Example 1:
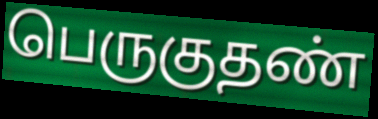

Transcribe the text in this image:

பெருகுதண்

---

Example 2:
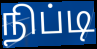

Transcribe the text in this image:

நிப்டி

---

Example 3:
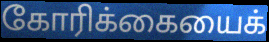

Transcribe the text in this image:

கோரிக்கையைக்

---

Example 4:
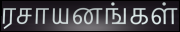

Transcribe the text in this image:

ரசாயனங்கள்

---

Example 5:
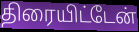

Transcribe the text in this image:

திரையிட்டேன்